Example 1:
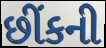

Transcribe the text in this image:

છીંકની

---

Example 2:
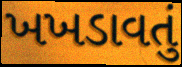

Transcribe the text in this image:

ખખડાવતું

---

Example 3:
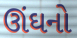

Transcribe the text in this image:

ઊંઘનો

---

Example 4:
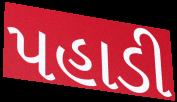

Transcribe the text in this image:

પહાડી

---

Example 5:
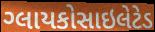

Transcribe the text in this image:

ગ્લાયકોસાઇલેટેડ